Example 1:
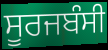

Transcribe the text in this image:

ਸੂਰਜਬੰਸੀ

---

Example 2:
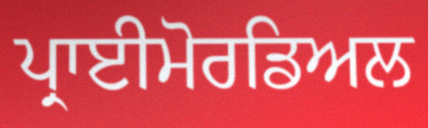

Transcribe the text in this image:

ਪ੍ਰਾਈਮੋਰਡਿਅਲ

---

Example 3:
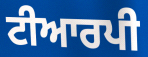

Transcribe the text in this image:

ਟੀਆਰਪੀ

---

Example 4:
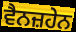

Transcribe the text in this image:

ਵੈਨਜ਼ਹੇਨ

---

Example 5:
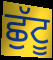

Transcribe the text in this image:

ਛੁੱਟੂ